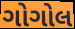
ગોગોલ